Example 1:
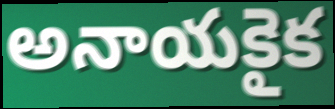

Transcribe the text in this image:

అనాయకైక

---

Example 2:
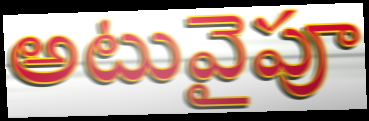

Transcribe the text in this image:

అటువైపూ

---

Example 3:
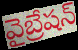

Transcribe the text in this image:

వైబ్రేషన్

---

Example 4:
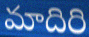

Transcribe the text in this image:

మాదిరి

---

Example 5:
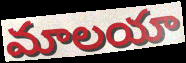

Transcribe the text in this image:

మాలయా